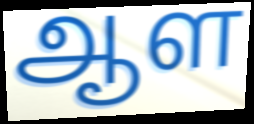
ஆள